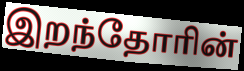
இறந்தோரின்